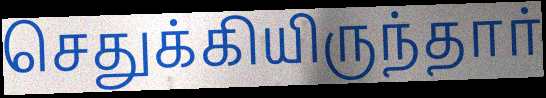
செதுக்கியிருந்தார்